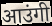
आउंगी